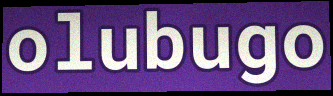
olubugo